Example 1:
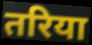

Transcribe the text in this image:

तरिया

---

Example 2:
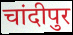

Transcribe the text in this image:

चांदीपुर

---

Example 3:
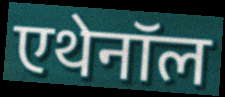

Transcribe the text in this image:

एथेनॉल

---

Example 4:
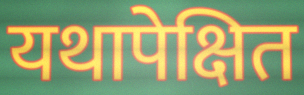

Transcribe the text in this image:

यथापेक्षित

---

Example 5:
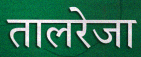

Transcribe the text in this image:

तालरेजा